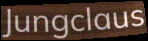
Jungclaus